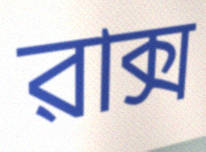
ৱাক্স